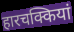
हारचक्कियां